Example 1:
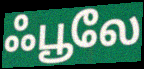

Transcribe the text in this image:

ஃபூலே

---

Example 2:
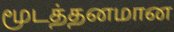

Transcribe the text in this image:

மூடத்தனமான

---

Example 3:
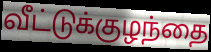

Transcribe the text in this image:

வீட்டுக்குழந்தை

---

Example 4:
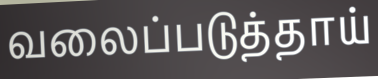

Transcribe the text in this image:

வலைப்படுத்தாய்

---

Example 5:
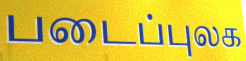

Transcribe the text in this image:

படைப்புலக